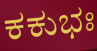
ಕಕುಭಃ